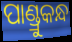
ପାଣ୍ଡ୍ରୁକନ୍ଧ